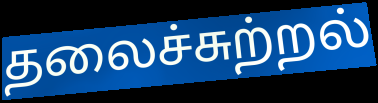
தலைச்சுற்றல்